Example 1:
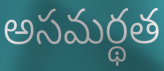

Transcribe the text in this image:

అసమర్థత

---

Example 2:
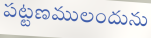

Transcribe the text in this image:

పట్టణములందును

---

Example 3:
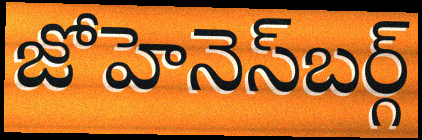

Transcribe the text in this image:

జోహెనెస్‍బర్గ్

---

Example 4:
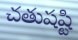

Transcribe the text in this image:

చతుషష్టి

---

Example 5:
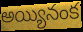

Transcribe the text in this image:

అయ్యినంక